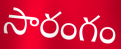
సారంగం